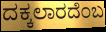
ದಕ್ಕಲಾರದೆಂಬ